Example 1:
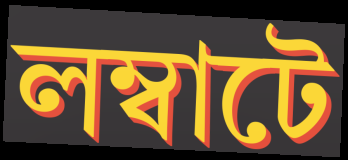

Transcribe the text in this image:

লম্বাটে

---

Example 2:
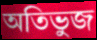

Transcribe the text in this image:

অতিভুজ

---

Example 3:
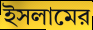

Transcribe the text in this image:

ইসলামের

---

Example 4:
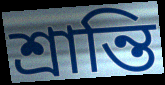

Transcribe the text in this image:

শ্রান্তি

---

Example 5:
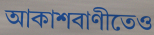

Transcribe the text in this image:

আকাশবাণীতেও